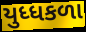
યુધ્ધકળા